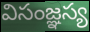
విసంజ్ఞస్య